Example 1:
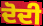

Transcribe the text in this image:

ਦੋਦੀ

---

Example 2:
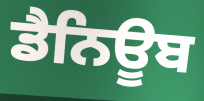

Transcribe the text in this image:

ਡੈਨਿਊਬ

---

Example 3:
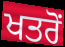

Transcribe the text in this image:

ਖਤਰੋਂ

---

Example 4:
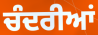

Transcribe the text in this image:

ਚੰਦਰੀਆਂ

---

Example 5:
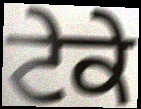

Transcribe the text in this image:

ਟੇਕੇ